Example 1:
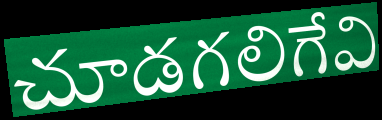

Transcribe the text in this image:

చూడగలిగేవి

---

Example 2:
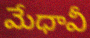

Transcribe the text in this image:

మేధావీ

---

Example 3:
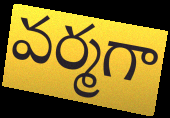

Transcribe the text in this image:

వర్మగా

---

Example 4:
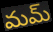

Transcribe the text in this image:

మమ్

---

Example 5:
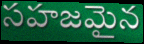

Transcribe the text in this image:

సహజమైన